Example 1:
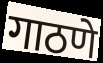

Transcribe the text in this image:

गाठणे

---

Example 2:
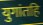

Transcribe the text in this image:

युगांतहि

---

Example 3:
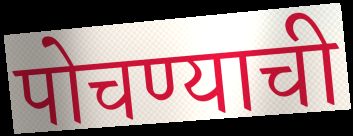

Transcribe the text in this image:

पोचण्याची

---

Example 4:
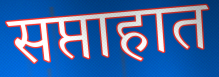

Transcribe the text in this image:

सप्ताहात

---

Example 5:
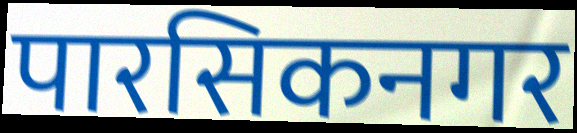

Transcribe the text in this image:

पारसिकनगर